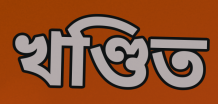
খণ্ডিত